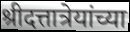
श्रीदत्तात्रेयांच्या